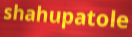
shahupatole